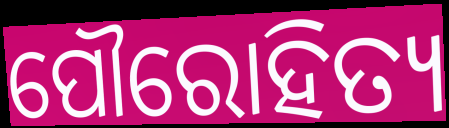
ପୌରୋହିତ୍ୟ